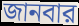
জানবার